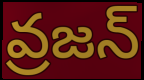
వ్రజన్